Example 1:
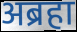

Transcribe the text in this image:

अब्रहा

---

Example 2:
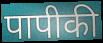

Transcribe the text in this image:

पापीकी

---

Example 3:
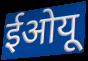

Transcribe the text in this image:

ईओयू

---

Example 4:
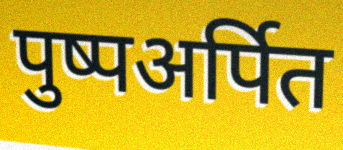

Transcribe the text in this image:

पुष्पअर्पित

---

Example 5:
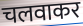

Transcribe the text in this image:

चलवाकर